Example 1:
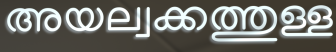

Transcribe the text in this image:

അയല്വക്കത്തുള്ള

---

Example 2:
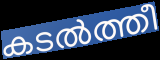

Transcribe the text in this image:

കടൽത്തീ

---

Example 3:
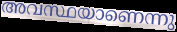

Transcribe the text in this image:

അവസ്ഥയാണെന്നു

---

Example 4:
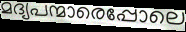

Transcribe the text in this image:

മദ്യപന്മാരെപ്പോലെ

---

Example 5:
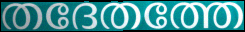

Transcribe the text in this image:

തദേതത്തേ